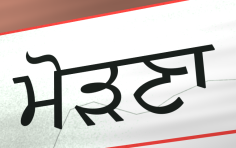
ਮੋੜਣਾ